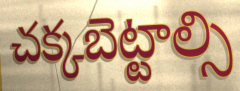
చక్కబెట్టాల్సి